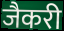
जैकरी